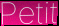
Petit